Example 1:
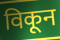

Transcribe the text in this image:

विकून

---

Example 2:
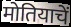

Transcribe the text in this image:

मोतियाचें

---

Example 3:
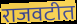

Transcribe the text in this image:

राजवटीत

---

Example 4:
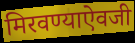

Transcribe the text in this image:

मिरवण्याऐवजी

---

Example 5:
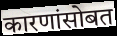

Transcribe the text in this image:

कारणांसोबत